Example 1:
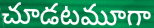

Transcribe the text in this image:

చూడటమూగా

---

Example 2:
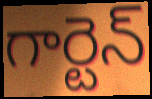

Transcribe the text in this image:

గార్టెన్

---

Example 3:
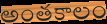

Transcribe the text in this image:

అంతకాలం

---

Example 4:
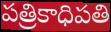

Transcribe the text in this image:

పత్రికాధిపతి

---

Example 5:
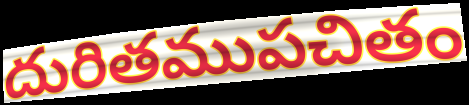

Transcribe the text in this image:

దురితముపచితం